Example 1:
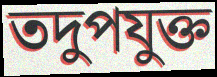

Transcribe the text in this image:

তদুপযুক্ত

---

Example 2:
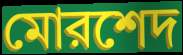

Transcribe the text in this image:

মোরশেদ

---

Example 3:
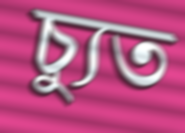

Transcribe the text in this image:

চ্যুত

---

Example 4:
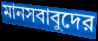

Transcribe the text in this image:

মানসবাবুদের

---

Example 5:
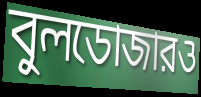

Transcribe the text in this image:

বুলডোজারও